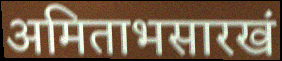
अमिताभसारखं